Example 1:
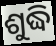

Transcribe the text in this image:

ଶୁଦ୍ଧି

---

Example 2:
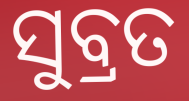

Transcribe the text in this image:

ସୁବ୍ରତ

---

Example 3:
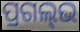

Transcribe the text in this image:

ପ୍ରଗଲ୍‌ଭ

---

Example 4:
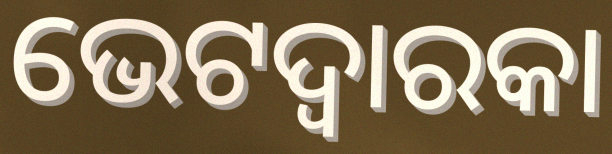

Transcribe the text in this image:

ଭେଟଦ୍ୱାରକା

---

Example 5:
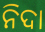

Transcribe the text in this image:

ନିଦା